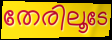
തേരിലൂടേ